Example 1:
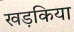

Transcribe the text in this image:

खड़किया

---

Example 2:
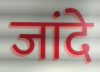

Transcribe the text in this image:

जांदे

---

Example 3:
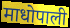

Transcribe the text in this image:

माधोपाली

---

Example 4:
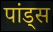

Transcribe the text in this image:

पांड्स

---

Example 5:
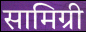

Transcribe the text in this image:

सामिग्री